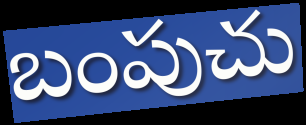
బంపుచు